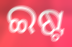
ଇଷ୍ଟ